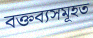
বক্তব্যসমূহত